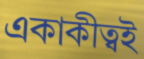
একাকীত্বই